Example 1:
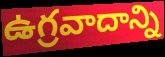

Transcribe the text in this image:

ఉగ్రవాదాన్ని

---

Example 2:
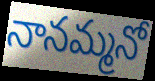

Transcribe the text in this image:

నానమ్మనో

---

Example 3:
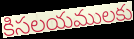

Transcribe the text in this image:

కిసలయములకు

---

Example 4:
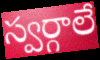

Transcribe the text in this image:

స్వర్గాలే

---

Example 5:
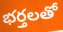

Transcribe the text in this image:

భర్తలతో